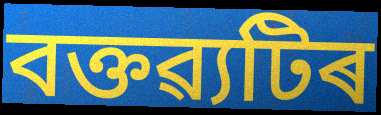
বক্তৱ্যটিৰ